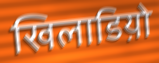
खिलाडिय़ो